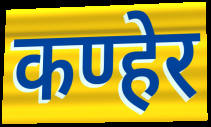
कण्हेर